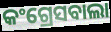
କଂଗ୍ରେସବାଲା